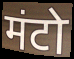
मंटो